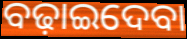
ବଢ଼ାଇଦେବା